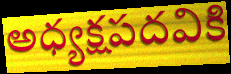
అధ్యక్షపదవికి